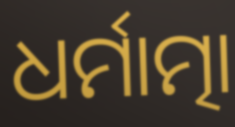
ଧର୍ମାତ୍ମା